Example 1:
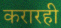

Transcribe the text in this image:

करारही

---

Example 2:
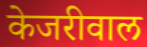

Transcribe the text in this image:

केजरीवाल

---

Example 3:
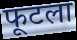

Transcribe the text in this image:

फूटला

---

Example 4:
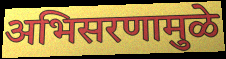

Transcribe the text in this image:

अभिसरणामुळे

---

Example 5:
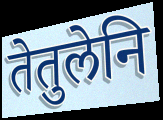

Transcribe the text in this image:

तेतुलेनि